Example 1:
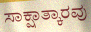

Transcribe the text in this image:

ಸಾಕ್ಷಾತ್ಕಾರವು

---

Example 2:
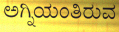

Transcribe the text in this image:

ಅಗ್ನಿಯಂತಿರುವ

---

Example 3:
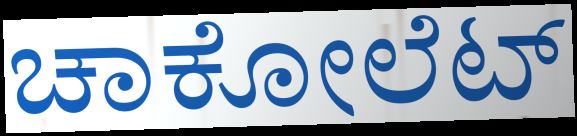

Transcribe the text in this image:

ಚಾಕೋಲೆಟ್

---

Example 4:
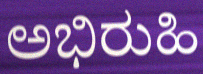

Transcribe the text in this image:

ಅಭಿರುಹಿ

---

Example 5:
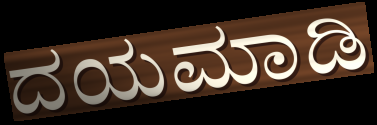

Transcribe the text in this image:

ದಯಮಾಡಿ